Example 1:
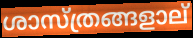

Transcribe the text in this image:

ശാസ്ത്രങ്ങളാല്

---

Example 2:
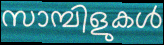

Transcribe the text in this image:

സാമ്പിളുകൾ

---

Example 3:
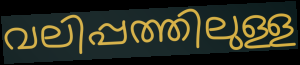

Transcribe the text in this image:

വലിപ്പത്തിലുള്ള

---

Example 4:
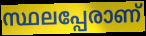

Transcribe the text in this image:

സ്ഥലപ്പേരാണ്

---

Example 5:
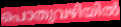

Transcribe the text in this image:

പൊതുവഴിയിൽ